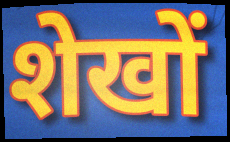
शेखों